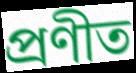
প্ৰণীত